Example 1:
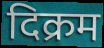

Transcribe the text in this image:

दिक्रम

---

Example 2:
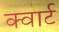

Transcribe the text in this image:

क्वार्ट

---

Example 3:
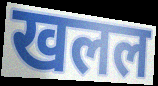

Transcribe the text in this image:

खलल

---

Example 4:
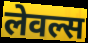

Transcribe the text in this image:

लेवल्स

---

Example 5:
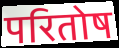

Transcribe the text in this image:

परितोष